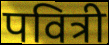
पवित्री